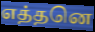
எத்தனெ